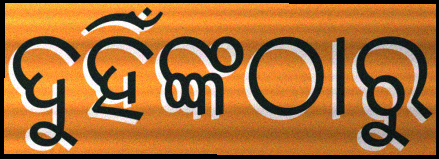
ଦୁହିଁଙ୍କଠାରୁ